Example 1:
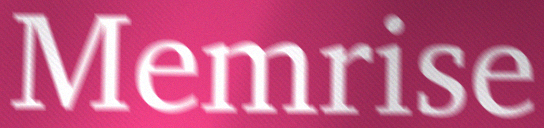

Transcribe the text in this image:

Memrise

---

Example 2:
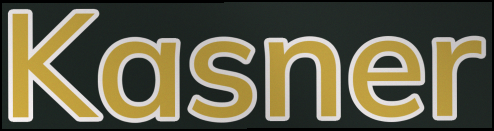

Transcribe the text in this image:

Kasner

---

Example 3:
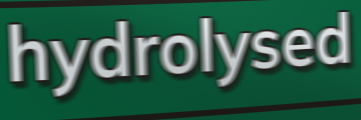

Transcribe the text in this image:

hydrolysed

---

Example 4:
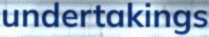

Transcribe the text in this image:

undertakings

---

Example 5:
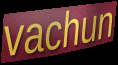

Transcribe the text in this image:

vachun